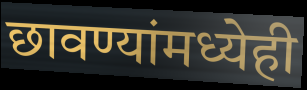
छावण्यांमध्येही